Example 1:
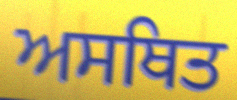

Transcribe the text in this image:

ਅਸਥਿਤ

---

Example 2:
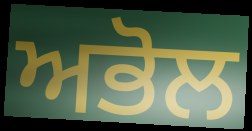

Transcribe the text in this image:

ਅਭੋਲ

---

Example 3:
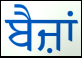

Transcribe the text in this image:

ਬੈਜ਼ਾਂ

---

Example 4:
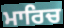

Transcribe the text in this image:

ਮਾਰਿਚ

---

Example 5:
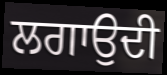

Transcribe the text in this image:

ਲਗਾਉਦੀ